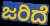
ಜರಿದೆ